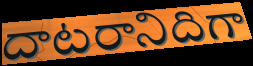
దాటరానిదిగా